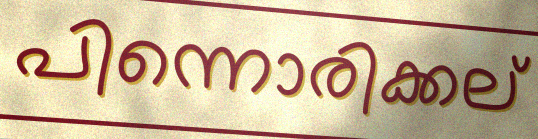
പിന്നൊരിക്കല്